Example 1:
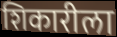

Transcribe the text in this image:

शिकारीला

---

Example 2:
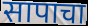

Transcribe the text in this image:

सापाचा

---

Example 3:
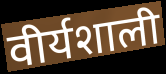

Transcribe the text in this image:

वीर्यशाली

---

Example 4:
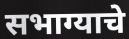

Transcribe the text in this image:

सभाग्याचे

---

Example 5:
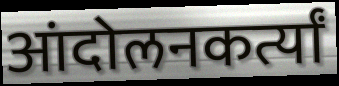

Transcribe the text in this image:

आंदोलनकर्त्यां